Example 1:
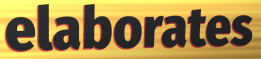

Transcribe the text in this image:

elaborates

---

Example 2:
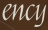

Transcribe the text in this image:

ency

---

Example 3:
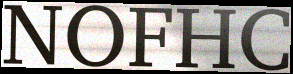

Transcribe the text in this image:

NOFHC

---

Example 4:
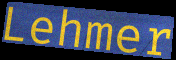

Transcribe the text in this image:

Lehmer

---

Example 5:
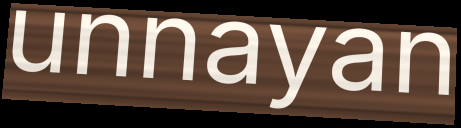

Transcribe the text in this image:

unnayan